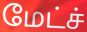
மேட்ச்